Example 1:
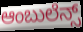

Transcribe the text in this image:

ಆಂಬುಲೆನ್ಸ್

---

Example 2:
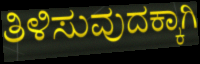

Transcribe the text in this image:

ತಿಳಿಸುವುದಕ್ಕಾಗಿ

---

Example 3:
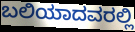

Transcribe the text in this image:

ಬಲಿಯಾದವರಲ್ಲಿ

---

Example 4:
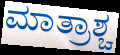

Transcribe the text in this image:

ಮಾತ್ರಾಶ್ಚ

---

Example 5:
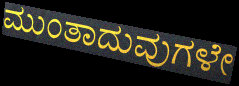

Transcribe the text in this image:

ಮುಂತಾದುವುಗಳೇ